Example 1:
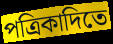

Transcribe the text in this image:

পত্রিকাদিতে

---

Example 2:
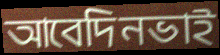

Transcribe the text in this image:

আবেদিনভাই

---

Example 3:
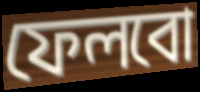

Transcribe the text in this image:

ফেলবো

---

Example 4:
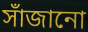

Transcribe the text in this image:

সাঁজানো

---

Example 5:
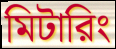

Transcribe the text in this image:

মিটারিং